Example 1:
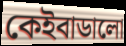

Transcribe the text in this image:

কেইবাডালো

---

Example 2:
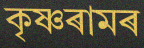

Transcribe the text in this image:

কৃষ্ণৰামৰ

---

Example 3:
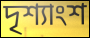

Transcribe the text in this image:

দৃশ্যাংশ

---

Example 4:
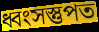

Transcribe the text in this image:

ধ্বংসস্তুপত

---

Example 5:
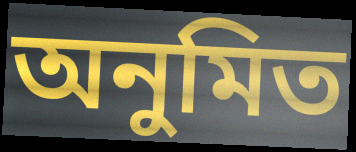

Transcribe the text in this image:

অনুমিত